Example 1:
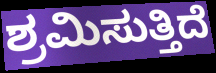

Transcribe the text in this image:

ಶ್ರಮಿಸುತ್ತಿದೆ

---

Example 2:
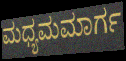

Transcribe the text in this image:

ಮಧ್ಯಮಮಾರ್ಗ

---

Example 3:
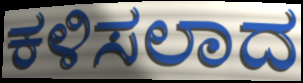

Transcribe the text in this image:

ಕಳಿಸಲಾದ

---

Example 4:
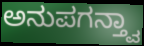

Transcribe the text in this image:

ಅನುಪಗನ್ತ್ವಾ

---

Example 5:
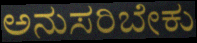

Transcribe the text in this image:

ಅನುಸರಿಬೇಕು